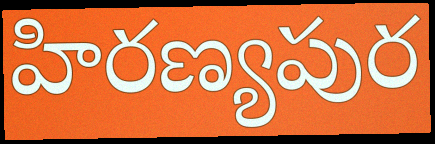
హిరణ్యపుర